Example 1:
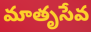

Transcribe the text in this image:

మాతృసేవ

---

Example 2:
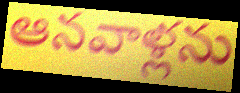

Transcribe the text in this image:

ఆనవాళ్లను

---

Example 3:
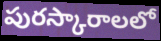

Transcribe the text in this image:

పురస్కారాలలో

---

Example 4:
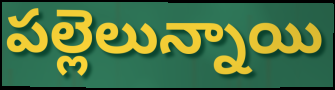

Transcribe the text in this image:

పల్లెలున్నాయి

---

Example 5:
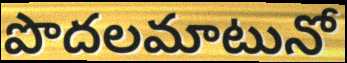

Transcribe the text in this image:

పొదలమాటునో